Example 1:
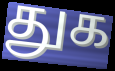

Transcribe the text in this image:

துக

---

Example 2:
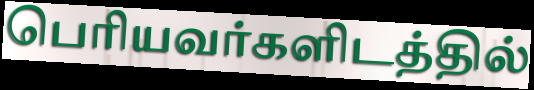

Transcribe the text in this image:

பெரியவர்களிடத்தில்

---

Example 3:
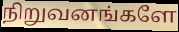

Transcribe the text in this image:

நிறுவனங்களே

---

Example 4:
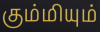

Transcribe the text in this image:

கும்மியும்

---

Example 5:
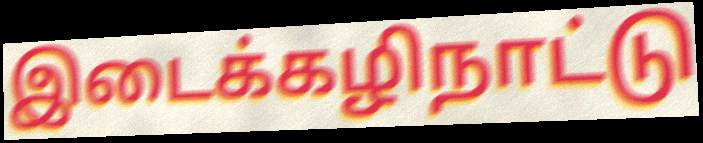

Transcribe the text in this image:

இடைக்கழிநாட்டு